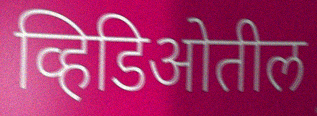
व्हिडिओतील